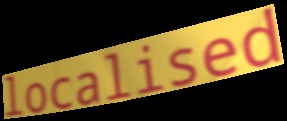
localised